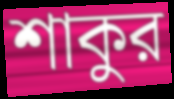
শাকুর